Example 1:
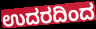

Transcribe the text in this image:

ಉದರದಿಂದ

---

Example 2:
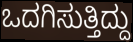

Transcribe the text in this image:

ಒದಗಿಸುತ್ತಿದ್ದು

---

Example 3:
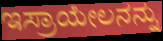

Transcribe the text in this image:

ಇಸ್ರಾಯೇಲನನ್ನು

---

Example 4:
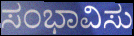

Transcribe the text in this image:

ಸಂಭಾವಿಸು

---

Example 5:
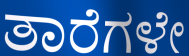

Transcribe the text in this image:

ತಾರೆಗಳೇ